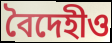
বৈদেহীও